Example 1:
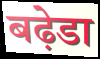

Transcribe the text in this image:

बढ़ेडा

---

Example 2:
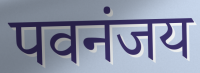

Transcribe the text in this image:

पवनंजय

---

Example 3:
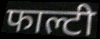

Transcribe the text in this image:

फाल्टी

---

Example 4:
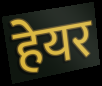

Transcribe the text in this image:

हेयर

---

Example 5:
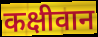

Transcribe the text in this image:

कक्षीवान